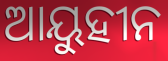
ଆୟୁହୀନ